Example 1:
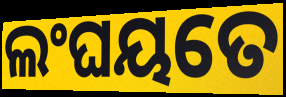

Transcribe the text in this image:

ଲଂଘୟତେ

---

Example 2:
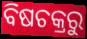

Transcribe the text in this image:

ବିଷଚକ୍ରରୁ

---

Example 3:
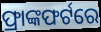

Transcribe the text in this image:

ଫ୍ରାଙ୍କଫର୍ଟରେ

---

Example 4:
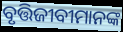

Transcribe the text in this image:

ବୃତ୍ତିଜୀବୀମାନଙ୍କ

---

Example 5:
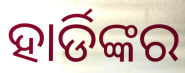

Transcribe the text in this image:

ହାର୍ଡିଙ୍କର